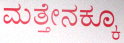
ಮತ್ತೇನಕ್ಕೂ